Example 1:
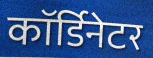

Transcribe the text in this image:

कॉर्डिनेटर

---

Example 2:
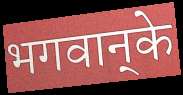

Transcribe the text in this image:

भगवान्‌के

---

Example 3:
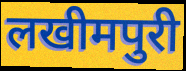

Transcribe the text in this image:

लखीमपुरी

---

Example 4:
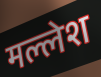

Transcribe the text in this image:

मल्लेश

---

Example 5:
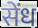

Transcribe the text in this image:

सेंध